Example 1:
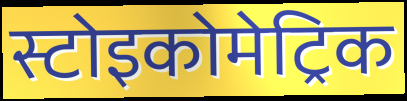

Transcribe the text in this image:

स्टोइकोमेट्रिक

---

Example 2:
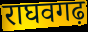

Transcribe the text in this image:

राघवगढ़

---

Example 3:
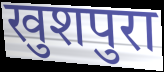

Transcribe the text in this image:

खुशपुरा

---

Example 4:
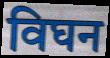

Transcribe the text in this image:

विघन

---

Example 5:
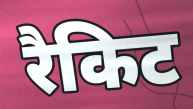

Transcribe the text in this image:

रैकिट